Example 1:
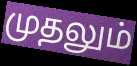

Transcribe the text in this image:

முதலும்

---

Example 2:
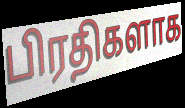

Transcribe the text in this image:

பிரதிகளாக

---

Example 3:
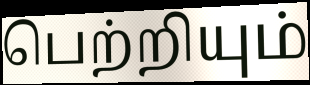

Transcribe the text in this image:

பெற்றியும்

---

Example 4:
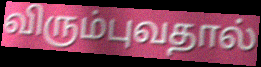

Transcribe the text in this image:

விரும்புவதால்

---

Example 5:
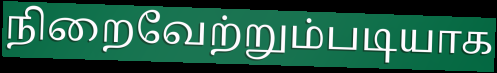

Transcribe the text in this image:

நிறைவேற்றும்படியாக